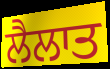
ਲੈਲਾਤ